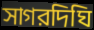
সাগরদিঘি